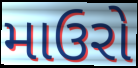
માઉરો